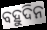
ବହୁଦିନ